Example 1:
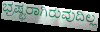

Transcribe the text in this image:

ಭ್ರಷ್ಟರಾಗಿರುವುದಿಲ್ಲ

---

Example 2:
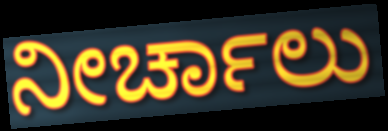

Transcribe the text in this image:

ನೀರ್ಚಾಲು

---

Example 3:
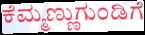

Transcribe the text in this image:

ಕೆಮ್ಮಣ್ಣುಗುಂಡಿಗೆ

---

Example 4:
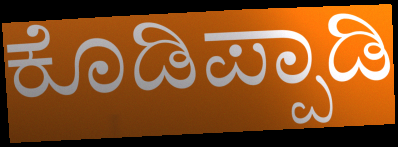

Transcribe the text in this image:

ಕೊಡಿಪ್ಪಾಡಿ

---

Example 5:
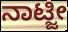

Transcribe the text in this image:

ನಾಟ್ಜೀ